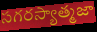
సగరస్యాత్మజా